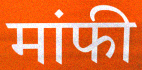
मांफी